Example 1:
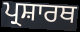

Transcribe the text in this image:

ਪ੍ਰਸ਼ਾਰਥ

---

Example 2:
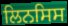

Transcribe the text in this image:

ਲਿਨਸਿਸ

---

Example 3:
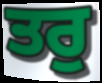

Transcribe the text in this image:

ਤਰੁ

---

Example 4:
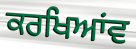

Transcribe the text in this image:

ਕਰਖਿਆਂਵ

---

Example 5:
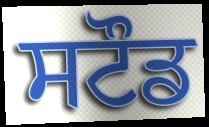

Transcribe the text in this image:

ਸਟੌਡ